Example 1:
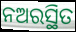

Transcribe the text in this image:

ନଅରସ୍ଥିତ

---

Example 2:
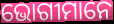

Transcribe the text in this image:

ଭୋଗୀମାନେ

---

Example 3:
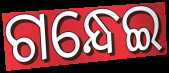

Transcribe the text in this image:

ଗନ୍ଧେଇ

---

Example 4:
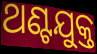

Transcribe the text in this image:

ଥଣ୍ଟଯୁକ୍ତ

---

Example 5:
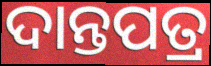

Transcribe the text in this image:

ଦାନ୍ତପତ୍ର